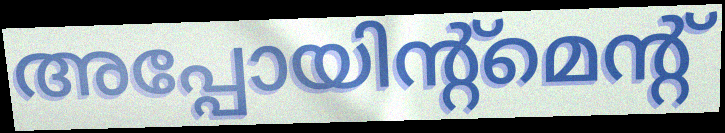
അപ്പോയിന്റ്മെന്റ്